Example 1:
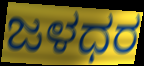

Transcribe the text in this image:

ಜಳಧರ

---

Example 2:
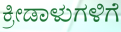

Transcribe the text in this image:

ಕ್ರೀಡಾಳುಗಳಿಗೆ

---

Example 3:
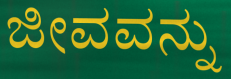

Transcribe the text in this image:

ಜೀವವನ್ನು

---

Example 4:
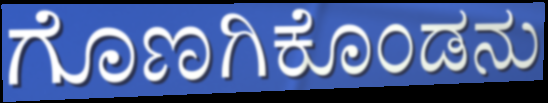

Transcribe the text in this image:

ಗೊಣಗಿಕೊಂಡನು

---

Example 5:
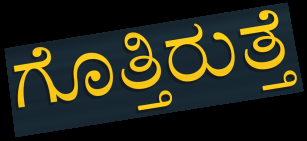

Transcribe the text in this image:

ಗೊತ್ತಿರುತ್ತೆ